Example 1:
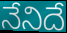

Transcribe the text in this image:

నేనిదే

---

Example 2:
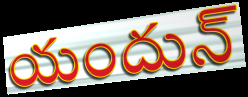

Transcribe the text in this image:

యందున్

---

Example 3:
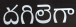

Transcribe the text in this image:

దగిలెగా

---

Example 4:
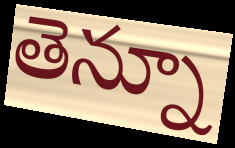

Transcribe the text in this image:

తెన్నూ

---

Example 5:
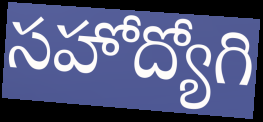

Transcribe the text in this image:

సహోద్యోగి